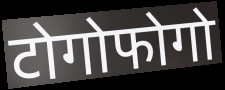
टोगोफोगो